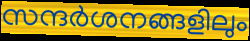
സന്ദർശനങ്ങളിലും